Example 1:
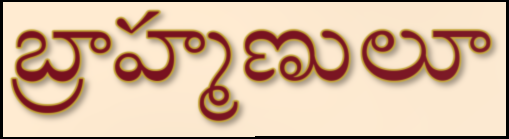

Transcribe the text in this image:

బ్రాహ్మణులూ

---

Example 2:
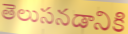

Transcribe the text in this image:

తెలుసనడానికి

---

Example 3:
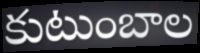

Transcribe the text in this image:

కుటుంబాల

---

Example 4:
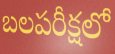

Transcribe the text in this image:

బలపరీక్షలో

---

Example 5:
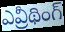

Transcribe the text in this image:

ఎవ్రీథింగ్